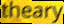
theary